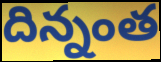
దిన్నంత